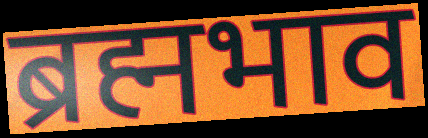
ब्रह्मभाव